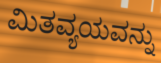
ಮಿತವ್ಯಯವನ್ನು